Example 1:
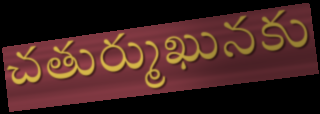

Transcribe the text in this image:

చతుర్ముఖునకు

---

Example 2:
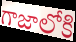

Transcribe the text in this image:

గాజాలోకి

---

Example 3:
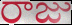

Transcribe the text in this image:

రాజు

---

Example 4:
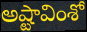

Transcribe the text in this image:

అష్టావింశో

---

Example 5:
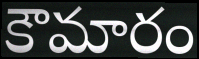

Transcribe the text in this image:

కౌమారం